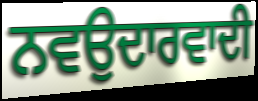
ਨਵਉਦਾਰਵਾਦੀ